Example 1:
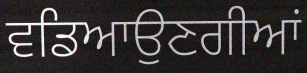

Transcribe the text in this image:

ਵਡਿਆਉਣਗੀਆਂ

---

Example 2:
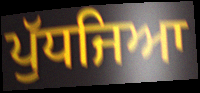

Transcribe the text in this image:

ਪੁੱਧਜਿਆ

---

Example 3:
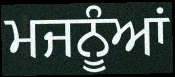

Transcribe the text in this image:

ਮਜਨੂੰਆਂ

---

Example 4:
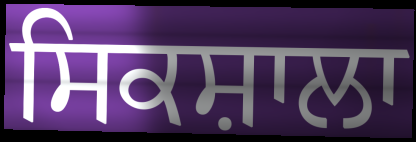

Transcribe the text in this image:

ਸਿਕਸ਼ਾਲਾ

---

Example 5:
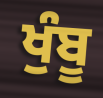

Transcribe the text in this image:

ਖੁੰਬੂ